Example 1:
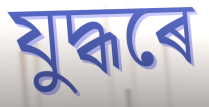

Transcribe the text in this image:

যুদ্ধৰে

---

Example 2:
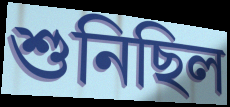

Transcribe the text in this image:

শুনিছিল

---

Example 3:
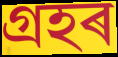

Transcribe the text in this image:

গ্ৰহৰ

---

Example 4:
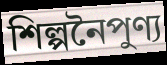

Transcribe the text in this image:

শিল্পনৈপুণ্য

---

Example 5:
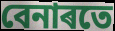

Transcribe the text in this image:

বেনাৰতে